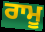
ਰਾਮੂ